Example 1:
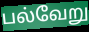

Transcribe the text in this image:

பல்வேறு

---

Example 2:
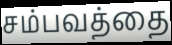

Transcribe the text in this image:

சம்பவத்தை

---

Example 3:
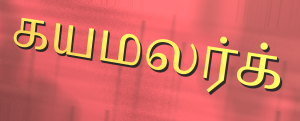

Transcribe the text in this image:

கயமலர்க்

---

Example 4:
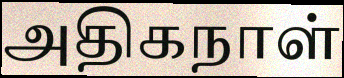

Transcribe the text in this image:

அதிகநாள்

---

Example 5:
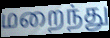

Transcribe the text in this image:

மறைந்து